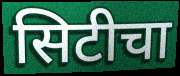
सिटीचा